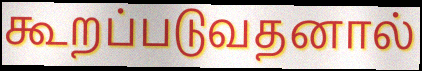
கூறப்படுவதனால்